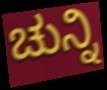
ಚುನ್ನಿ